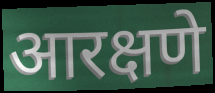
आरक्षणे